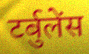
टर्बुलेंस